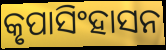
କୃପାସିଂହାସନ